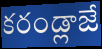
కరండ్లాజే